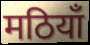
मठियाँ